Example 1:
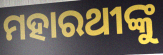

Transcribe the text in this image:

ମହାରଥୀଙ୍କୁ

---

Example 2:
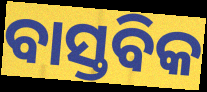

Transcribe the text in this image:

ବାସ୍ତବିକ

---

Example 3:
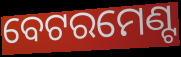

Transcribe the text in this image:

ବେଟରମେଣ୍ଟ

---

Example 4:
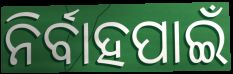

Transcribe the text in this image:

ନିର୍ବାହପାଇଁ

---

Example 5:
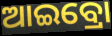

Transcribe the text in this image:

ଆଇବ୍ରୋ